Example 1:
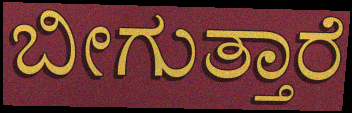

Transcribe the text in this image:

ಬೀಗುತ್ತಾರೆ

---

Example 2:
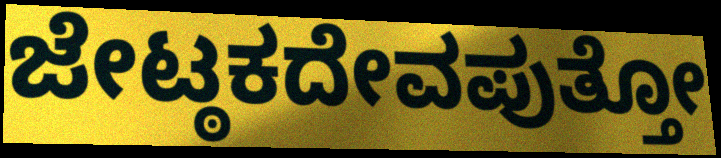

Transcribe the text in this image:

ಜೇಟ್ಠಕದೇವಪುತ್ತೋ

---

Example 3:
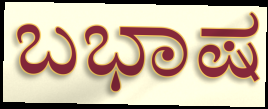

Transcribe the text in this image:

ಬಭಾಷ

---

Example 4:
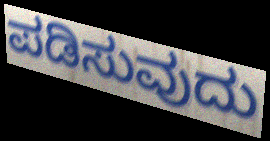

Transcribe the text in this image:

ಪಡಿಸುವುದು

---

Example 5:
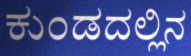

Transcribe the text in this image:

ಕುಂಡದಲ್ಲಿನ